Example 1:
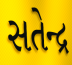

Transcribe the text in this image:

સતેન્દ્ર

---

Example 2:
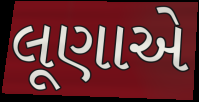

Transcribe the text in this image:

લૂણાએ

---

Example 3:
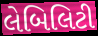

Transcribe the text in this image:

લેબિલિટી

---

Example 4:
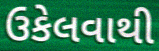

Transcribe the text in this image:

ઉકેલવાથી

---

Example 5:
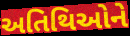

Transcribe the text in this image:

અતિથિઓને